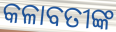
କଳାବତୀଙ୍କ